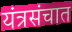
यंत्रसंचात